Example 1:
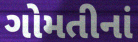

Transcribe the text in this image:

ગોમતીનાં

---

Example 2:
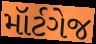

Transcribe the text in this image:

મૉર્ટગેજ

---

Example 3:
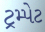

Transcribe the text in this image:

ટ્રમ્પેટ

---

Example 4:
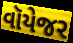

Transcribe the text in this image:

વૉયેજર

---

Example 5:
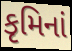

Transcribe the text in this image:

કૃમિનાં